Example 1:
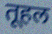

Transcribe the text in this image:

तूहल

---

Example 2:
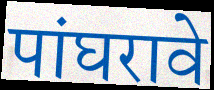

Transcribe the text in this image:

पांघरावे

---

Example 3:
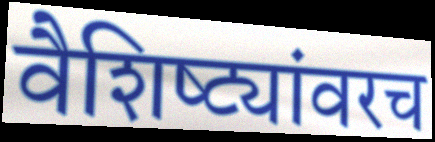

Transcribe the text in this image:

वैशिष्ट्यांवरच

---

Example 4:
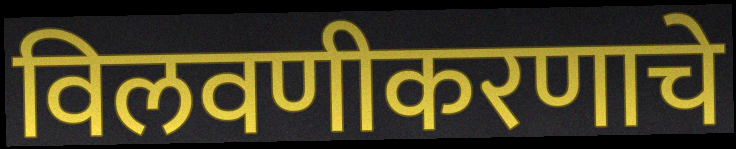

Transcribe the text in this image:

विलवणीकरणाचे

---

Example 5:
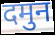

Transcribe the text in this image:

दमुन